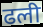
ढली